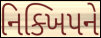
નિક્ખિપને